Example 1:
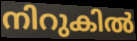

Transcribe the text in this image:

നിറുകിൽ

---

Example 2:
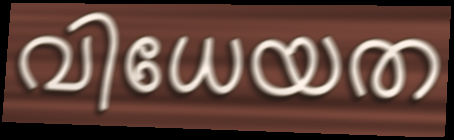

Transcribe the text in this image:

വിധേയത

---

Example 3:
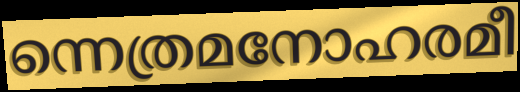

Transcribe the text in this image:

ന്നെത്രമനോഹരമീ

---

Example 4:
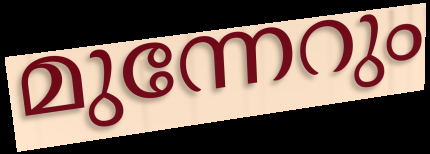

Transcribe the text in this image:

മുന്നേറും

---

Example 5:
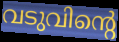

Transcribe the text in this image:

വടുവിന്റെ